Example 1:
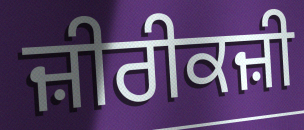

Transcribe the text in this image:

ਜ਼ੀਰੀਕਜ਼ੀ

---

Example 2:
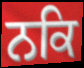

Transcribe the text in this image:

ਨਕਿ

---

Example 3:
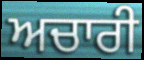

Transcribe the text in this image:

ਅਚਾਰੀ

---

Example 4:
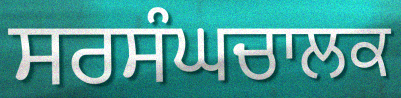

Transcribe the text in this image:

ਸਰਸੰਘਚਾਲਕ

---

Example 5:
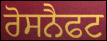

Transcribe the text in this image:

ਰੋਸਨੈਫਟ